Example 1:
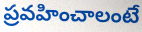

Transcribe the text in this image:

ప్రవహించాలంటే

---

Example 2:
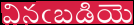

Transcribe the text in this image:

వినఁబడియె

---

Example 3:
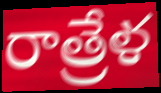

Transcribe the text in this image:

రాత్రేళ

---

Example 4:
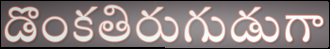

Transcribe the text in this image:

డొంకతిరుగుడుగా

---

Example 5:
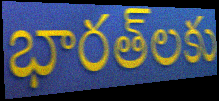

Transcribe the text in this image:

భారత్‌లకు